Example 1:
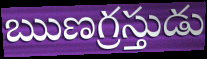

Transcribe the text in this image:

ఋణగ్రస్తుడు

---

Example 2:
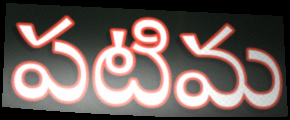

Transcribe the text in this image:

పటిమ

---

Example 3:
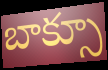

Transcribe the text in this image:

బాక్సూ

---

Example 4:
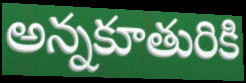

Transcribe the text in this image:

అన్నకూతురికి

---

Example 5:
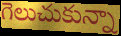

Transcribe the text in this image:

గెలుచుకున్నా